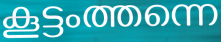
കൂട്ടംത്തന്നെ